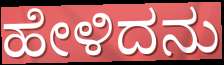
ಹೇಳಿದನು